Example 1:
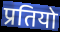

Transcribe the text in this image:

प्रतियो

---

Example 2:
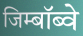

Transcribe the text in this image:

जिम्बॉब्वे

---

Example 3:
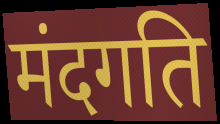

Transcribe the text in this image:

मंदगति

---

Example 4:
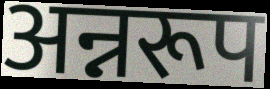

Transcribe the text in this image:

अन्नरूप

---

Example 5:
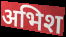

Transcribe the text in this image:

अभिश